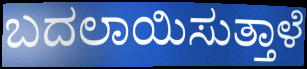
ಬದಲಾಯಿಸುತ್ತಾಳೆ